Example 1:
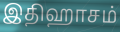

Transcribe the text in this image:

இதிஹாசம்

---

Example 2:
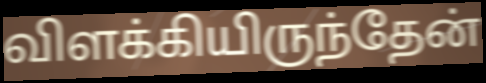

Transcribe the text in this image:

விளக்கியிருந்தேன்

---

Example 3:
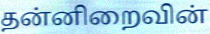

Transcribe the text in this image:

தன்னிறைவின்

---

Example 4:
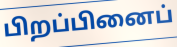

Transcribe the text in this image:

பிறப்பினைப்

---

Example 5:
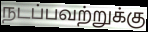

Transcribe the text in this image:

நடப்பவற்றுக்கு